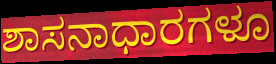
ಶಾಸನಾಧಾರಗಳೂ